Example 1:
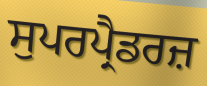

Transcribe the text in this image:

ਸੁਪਰਪ੍ਰੈਡਰਜ਼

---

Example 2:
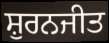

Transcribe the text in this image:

ਸ਼ੁਰਨਜੀਤ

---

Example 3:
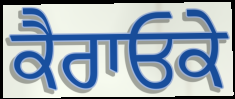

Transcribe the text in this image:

ਕੈਰਾਓਕੇ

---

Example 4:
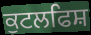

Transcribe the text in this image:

ਕੁਟਲਫਿਸ਼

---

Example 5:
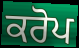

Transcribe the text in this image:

ਕਰੋਪ